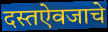
दस्तऐवजाचे